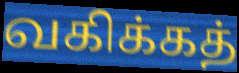
வகிக்கத்